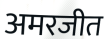
अमरजीत